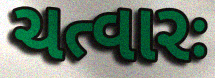
ચત્વારઃ